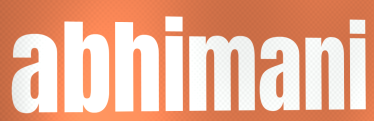
abhimani